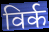
विर्क